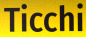
Ticchi